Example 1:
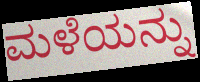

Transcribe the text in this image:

ಮಳೆಯನ್ನು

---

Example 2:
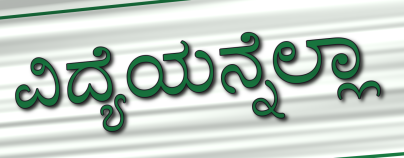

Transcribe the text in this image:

ವಿದ್ಯೆಯನ್ನೆಲ್ಲಾ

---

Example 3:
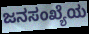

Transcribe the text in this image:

ಜನಸಂಖ್ಯೆಯ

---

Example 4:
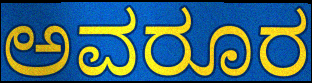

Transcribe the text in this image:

ಅವರೂರ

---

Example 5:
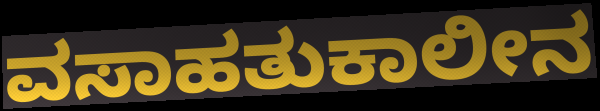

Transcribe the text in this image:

ವಸಾಹತುಕಾಲೀನ